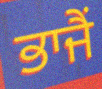
ਭਾਜੈਂ